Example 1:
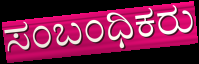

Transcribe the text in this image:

ಸಂಬಂಧಿಕರು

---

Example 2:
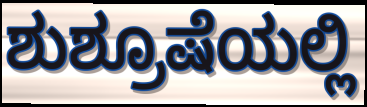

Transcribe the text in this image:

ಶುಶ್ರೂಷೆಯಲ್ಲಿ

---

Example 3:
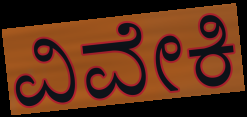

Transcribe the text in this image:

ವಿವೇಕಿ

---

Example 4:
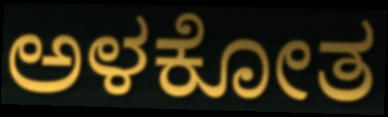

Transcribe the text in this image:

ಅಳಕೋತ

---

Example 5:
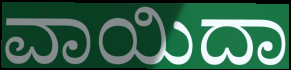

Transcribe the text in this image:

ವಾಯಿದಾ